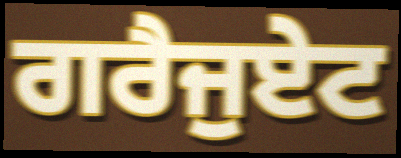
ਗਰੈਜੁਏਟ